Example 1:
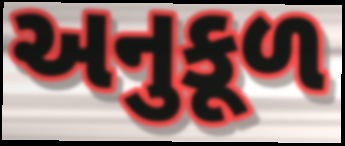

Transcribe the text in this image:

અનુકૂળ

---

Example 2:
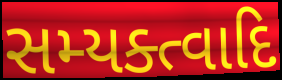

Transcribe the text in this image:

સમ્યક્ત્વાદિ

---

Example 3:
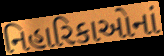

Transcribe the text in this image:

નિહારિકાઓનાં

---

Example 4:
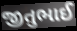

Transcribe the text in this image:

જીતુભાઈ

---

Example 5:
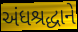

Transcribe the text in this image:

અંધશ્રદ્ધાને